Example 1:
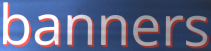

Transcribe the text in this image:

banners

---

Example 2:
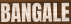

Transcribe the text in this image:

BANGALE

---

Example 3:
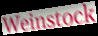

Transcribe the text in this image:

Weinstock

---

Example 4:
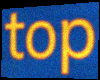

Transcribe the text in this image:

top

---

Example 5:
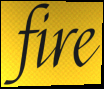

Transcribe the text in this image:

fire